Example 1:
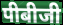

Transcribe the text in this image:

पीबीजी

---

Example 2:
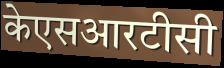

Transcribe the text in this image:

केएसआरटीसी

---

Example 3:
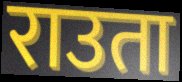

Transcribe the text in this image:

राउता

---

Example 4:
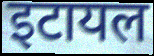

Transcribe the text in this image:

इटायल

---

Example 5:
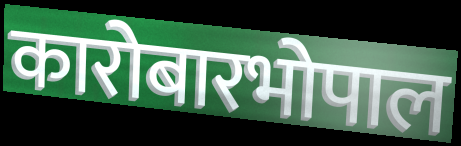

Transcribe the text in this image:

कारोबारभोपाल